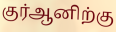
குர்ஆனிற்கு